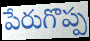
పేరుగొప్ప